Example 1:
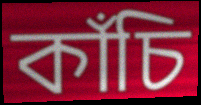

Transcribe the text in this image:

কাঁচি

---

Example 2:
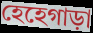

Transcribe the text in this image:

হেহেগাড়া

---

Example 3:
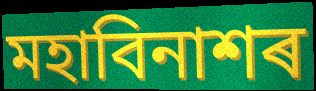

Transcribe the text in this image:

মহাবিনাশৰ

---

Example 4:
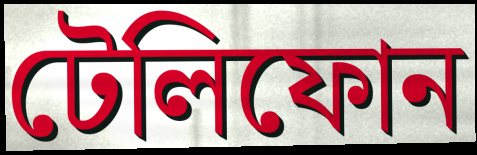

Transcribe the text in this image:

টেলিফোন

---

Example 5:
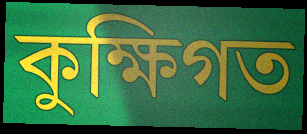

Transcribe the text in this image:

কুক্ষিগত